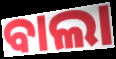
ବାଲା